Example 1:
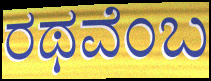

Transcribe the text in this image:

ರಥವೆಂಬ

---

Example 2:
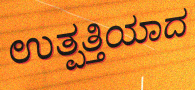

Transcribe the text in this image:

ಉತ್ಪತ್ತಿಯಾದ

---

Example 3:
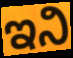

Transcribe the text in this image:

ಇನಿ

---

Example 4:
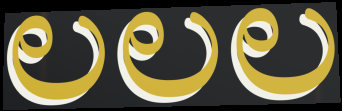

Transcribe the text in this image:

ಲಲಲ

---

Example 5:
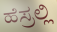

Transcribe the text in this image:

ಹೆಸ್ರಲ್ಲಿ